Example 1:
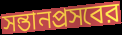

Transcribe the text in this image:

সন্তানপ্রসবের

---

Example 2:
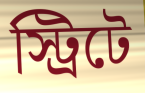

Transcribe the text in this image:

স্ট্রিটে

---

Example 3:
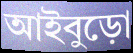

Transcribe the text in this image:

আইবুড়ো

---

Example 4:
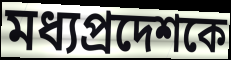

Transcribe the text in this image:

মধ্যপ্রদেশকে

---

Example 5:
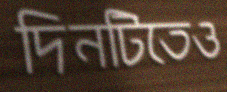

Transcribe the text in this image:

দিনটিতেও